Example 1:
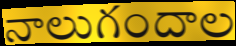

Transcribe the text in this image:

నాలుగందాల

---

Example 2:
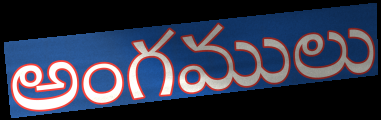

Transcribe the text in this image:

అంగములు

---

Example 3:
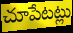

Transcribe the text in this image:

చూపేటట్లు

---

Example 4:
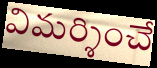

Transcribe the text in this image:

విమర్శించే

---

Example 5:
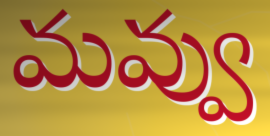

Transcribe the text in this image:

మవ్వు